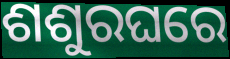
ଶଶୁରଘରେ